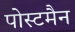
पोस्टमैन